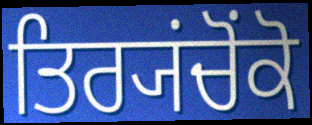
ਤਿਰ੍ਯਂਚੋਂਕੋ